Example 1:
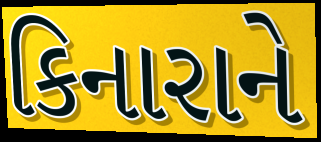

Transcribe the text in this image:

કિનારાને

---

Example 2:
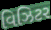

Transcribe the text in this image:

વિઝિટર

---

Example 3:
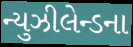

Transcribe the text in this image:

ન્યુઝીલેન્ડના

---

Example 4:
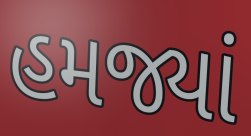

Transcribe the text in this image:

હમજ્યાં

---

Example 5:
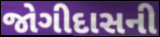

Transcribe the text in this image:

જોગીદાસની